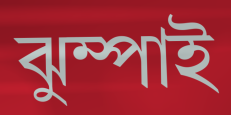
ঝুম্পাই